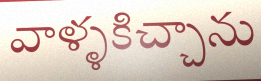
వాళ్ళకిచ్చాను